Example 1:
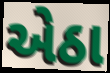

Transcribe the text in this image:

એઠા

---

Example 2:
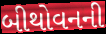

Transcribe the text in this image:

બીથોવનની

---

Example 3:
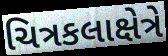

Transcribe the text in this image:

ચિત્રકલાક્ષેત્રે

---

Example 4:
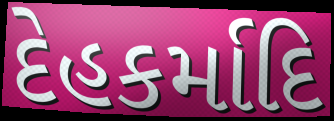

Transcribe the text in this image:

દેહકર્માદિ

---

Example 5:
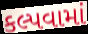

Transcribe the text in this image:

કલ્પવામાં